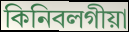
কিনিবলগীয়া